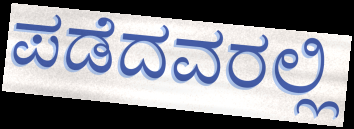
ಪಡೆದವರಲ್ಲಿ